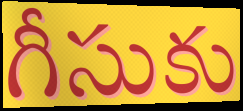
గీసుకు